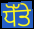
ਧੋੱਤੇ